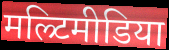
मल्टिमीडिया